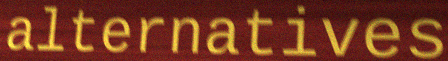
alternatives